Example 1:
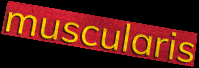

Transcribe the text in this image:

muscularis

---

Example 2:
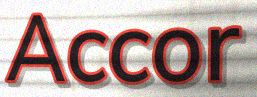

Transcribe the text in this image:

Accor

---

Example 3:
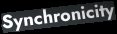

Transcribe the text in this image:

Synchronicity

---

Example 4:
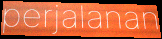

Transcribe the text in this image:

perjalanan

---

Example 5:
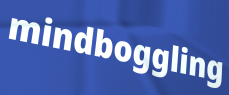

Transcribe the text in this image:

mindboggling